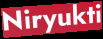
Niryukti